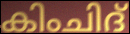
കിംചിദ്